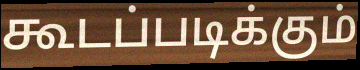
கூடப்படிக்கும்